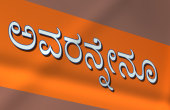
ಅವರನ್ನೇನೂ